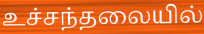
உச்சந்தலையில்